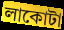
লাকোটা